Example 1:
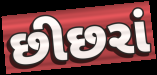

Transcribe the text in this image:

છીછરાં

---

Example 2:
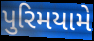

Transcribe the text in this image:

પુરિમયામે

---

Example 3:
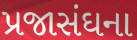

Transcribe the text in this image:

પ્રજાસંઘના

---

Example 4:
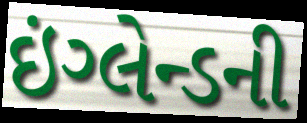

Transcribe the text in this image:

ઇંગ્લેન્ડની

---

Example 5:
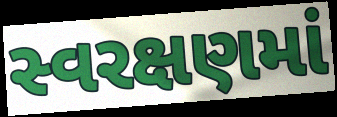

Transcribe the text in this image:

સ્વરક્ષણમાં